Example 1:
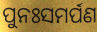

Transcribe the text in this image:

ପୁନଃସମର୍ପଣ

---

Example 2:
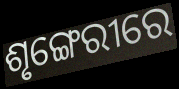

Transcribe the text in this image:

ଶୃଙ୍ଗେରୀରେ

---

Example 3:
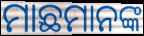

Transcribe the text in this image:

ମାଛମାନଙ୍କ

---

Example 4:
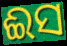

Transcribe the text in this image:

ଈସ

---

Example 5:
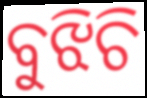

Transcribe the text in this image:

ବୁଝିଚି